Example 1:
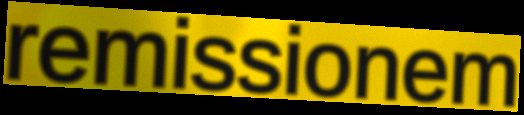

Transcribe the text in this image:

remissionem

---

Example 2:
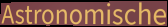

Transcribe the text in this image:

Astronomische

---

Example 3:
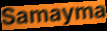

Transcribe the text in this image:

Samayma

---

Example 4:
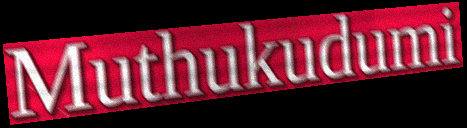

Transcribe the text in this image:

Muthukudumi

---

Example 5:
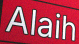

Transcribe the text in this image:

Alaih